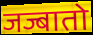
जज्बातो